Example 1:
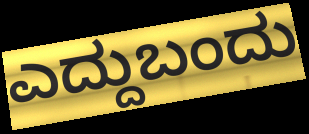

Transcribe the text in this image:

ಎದ್ದುಬಂದು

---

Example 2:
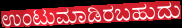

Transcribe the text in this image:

ಉಂಟುಮಾಡಿರಬಹುದು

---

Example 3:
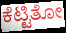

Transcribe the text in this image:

ಕೆಟ್ಟಿತೋ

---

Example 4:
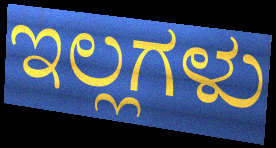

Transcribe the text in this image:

ಇಲ್ಲಗಳು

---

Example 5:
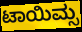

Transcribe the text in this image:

ಟಾಯಿಮ್ಸ